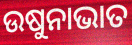
ଉଷୁନାଭାତ